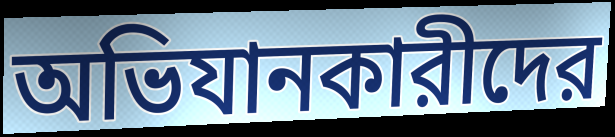
অভিযানকারীদের